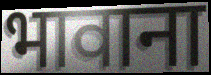
भावाना